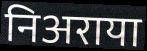
निअराया